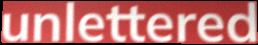
unlettered